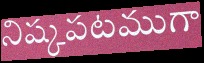
నిష్కపటముగా